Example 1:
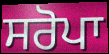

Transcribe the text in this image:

ਸਰੋਪਾ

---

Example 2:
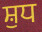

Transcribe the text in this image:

ਸ਼ੁਧ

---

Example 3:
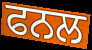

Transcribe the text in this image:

ਫਨਲ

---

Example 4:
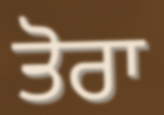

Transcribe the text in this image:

ਤੋਰਾ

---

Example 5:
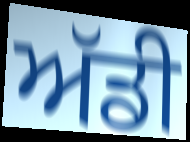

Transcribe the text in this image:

ਅੱਡੀ